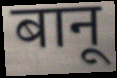
बानू